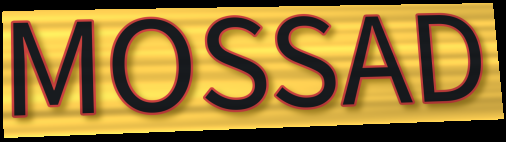
MOSSAD